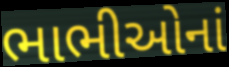
ભાભીઓનાં